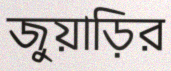
জুয়াড়ির